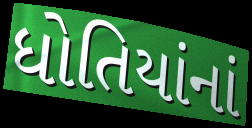
ધોતિયાંનાં